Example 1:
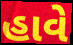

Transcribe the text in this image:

હાવે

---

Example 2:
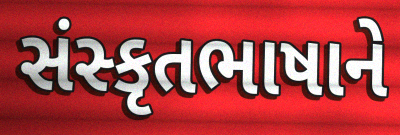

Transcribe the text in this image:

સંસ્કૃતભાષાને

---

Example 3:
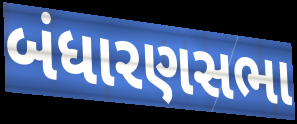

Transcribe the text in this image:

બંધારણસભા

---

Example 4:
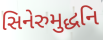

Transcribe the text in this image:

સિનેરુમુદ્ધનિ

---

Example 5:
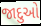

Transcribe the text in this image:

જાદુઓ